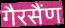
गैरसैंण